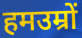
हमउम्रों